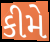
કીમે